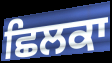
ਛਿਲਕਾ